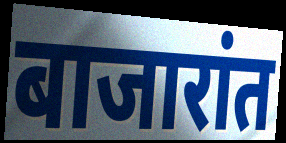
बाजारांत